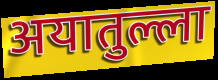
अयातुल्ला